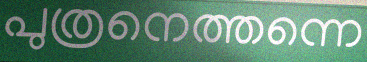
പുത്രനെത്തന്നെ